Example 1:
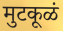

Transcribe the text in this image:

मुटकूळं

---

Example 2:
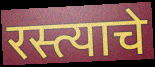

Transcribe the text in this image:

रस्त्याचे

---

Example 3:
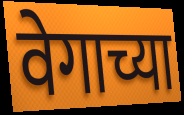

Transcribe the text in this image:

वेगाच्या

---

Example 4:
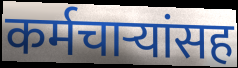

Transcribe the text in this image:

कर्मचाऱ्यांसह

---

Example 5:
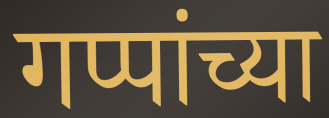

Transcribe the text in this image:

गप्पांच्या